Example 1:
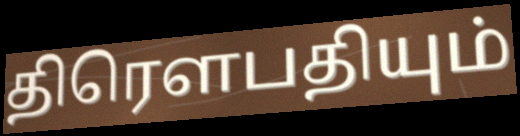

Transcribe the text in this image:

திரெளபதியும்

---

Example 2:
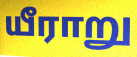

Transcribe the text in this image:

யீராறு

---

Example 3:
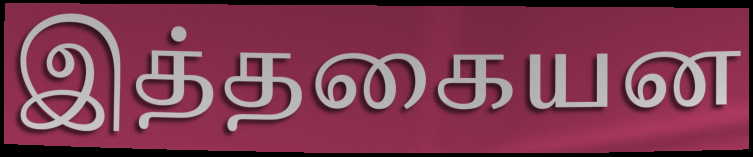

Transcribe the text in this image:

இத்தகையன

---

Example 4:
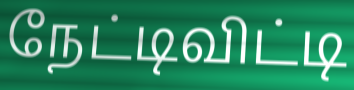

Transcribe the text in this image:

நேட்டிவிட்டி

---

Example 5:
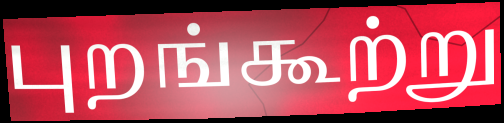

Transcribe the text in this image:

புறங்கூற்று